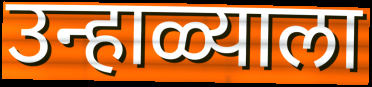
उन्हाळ्याला